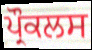
ਪ੍ਰੌਕਲਸ